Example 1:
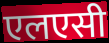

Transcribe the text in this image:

एलएसी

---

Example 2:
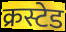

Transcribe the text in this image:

क्रस्टेड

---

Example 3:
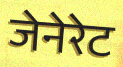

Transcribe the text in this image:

जेनेरेट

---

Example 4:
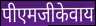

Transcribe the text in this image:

पीएमजीकेवाय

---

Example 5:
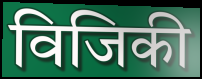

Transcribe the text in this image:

विजिकी